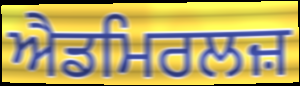
ਐਡਮਿਰਲਜ਼